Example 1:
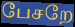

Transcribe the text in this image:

பேசறே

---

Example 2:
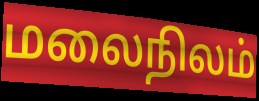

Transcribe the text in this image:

மலைநிலம்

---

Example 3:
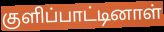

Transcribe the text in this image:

குளிப்பாட்டினாள்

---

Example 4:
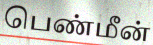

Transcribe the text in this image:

பெண்மீன்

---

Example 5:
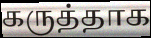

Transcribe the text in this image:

கருத்தாக